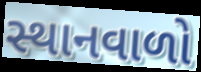
સ્થાનવાળો